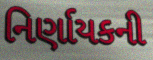
નિર્ણાયકની